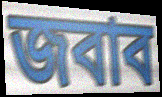
জবাব